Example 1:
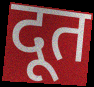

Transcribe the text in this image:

दूत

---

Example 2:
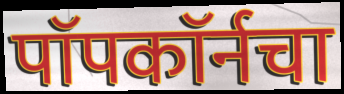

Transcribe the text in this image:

पॉपकॉर्नचा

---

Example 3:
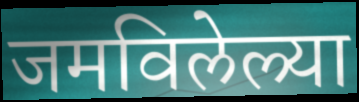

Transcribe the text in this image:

जमविलेल्या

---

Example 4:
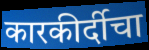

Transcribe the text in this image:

कारकीर्दीचा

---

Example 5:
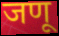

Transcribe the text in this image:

जणू